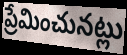
ప్రేమించునట్లు